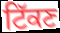
ਟਿੱਕਣ